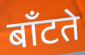
बाँटते